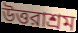
উত্তরাশ্রম